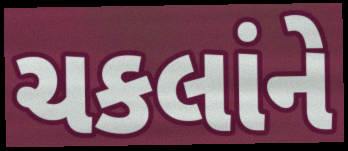
ચકલાંને